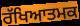
ਰੱਖਿਆਤਮਕ